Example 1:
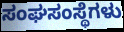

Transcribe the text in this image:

ಸಂಘಸಂಸ್ಥೆಗಳು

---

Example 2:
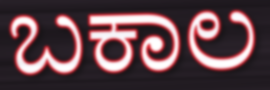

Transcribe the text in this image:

ಬಕಾಲ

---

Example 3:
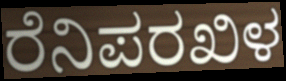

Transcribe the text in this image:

ರೆನಿಪರಖಿಳ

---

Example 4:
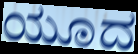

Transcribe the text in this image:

ಯೂದ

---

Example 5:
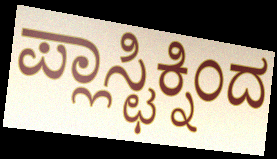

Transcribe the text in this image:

ಪ್ಲಾಸ್ಟಿಕ್ನಿಂದ